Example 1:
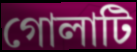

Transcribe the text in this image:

গোলাটি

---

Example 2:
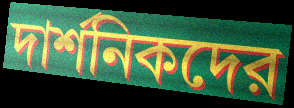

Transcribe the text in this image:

দার্শনিকদের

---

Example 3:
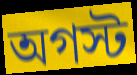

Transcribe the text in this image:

অগস্ট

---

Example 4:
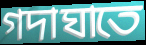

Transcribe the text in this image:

গদাঘাতে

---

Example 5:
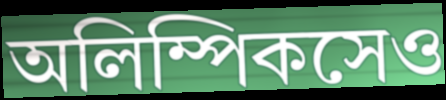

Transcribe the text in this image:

অলিম্পিকসেও